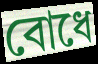
বোধে